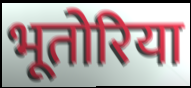
भूतोरिया